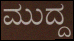
ಮುದ್ದ